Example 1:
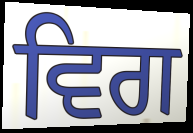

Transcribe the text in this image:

ਵਿਗ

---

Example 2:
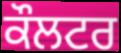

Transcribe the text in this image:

ਕੌਲਟਰ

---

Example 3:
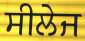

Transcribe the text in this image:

ਸੀਲੇਜ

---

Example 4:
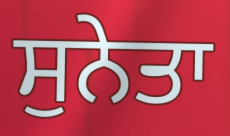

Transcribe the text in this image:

ਸੁਨੇਤਾ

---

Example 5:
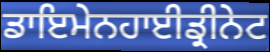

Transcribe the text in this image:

ਡਾਇਮੇਨਹਾਈਡ੍ਰੀਨੇਟ